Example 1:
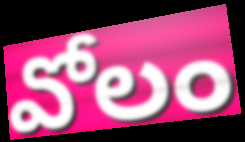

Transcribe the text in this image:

వోలం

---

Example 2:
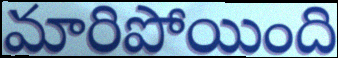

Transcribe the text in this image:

మారిపోయింది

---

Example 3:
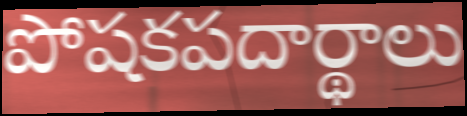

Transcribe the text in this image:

పోషకపదార్థాలు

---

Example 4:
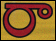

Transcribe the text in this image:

రా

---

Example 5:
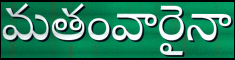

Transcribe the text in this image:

మతంవారైనా